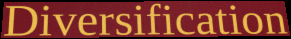
Diversification